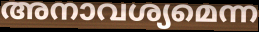
അനാവശ്യമെന്ന